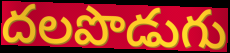
దలపొడుగు